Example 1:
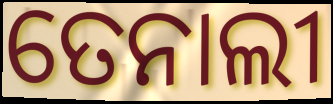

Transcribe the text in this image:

ତେନାଲୀ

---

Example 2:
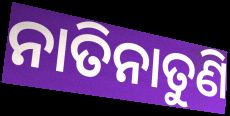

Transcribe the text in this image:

ନାତିନାତୁଣି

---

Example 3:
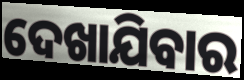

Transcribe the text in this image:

ଦେଖାଯିବାର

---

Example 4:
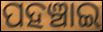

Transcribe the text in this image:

ପହଞ୍ଚାଇ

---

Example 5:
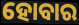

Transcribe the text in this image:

ହୋବାର